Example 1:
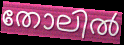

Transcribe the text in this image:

തോലിൽ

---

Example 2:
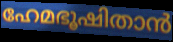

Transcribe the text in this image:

ഹേമഭൂഷിതാൻ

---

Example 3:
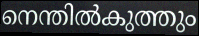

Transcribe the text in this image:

നെന്തിൽകുത്തും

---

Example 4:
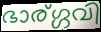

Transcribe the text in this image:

ഭാര്ഗ്ഗവി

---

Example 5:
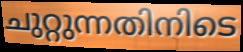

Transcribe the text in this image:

ചുറ്റുന്നതിനിടെ